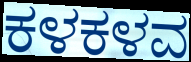
ಕಳಕಳವ